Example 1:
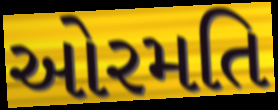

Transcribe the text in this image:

ઓરમતિ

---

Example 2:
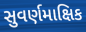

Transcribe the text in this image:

સુવર્ણમાક્ષિક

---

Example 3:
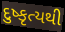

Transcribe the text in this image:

દુષ્કૃત્યથી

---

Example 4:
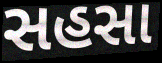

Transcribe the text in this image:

સહસા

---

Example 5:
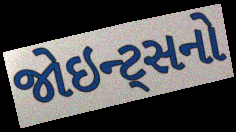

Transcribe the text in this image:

જોઇન્ટ્સનો